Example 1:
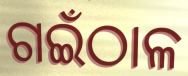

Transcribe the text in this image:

ଗଇଁଠାଳ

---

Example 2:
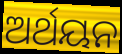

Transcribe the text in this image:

ଅର୍ଥୟନ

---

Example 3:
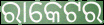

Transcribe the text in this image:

ରାକେଟର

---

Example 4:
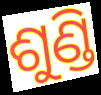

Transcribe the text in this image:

ଶୁଣ୍ଡି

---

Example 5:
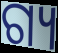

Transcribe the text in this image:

ଗ୍ଯ